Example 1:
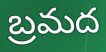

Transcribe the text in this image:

బ్రమద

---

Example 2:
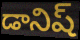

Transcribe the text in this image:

డానిష్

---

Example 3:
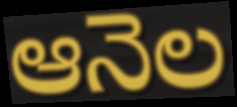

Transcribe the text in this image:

ఆనెల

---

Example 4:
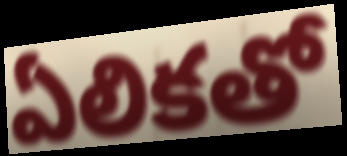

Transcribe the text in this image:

ఏలికతో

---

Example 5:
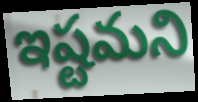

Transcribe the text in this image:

ఇష్టమని